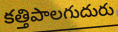
కత్తిపాలగుదురు